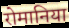
रोमानिया